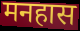
मनहास